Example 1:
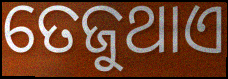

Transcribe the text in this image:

ତେଜୁଥାଏ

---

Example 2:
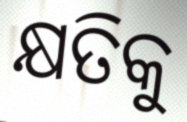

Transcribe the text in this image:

କ୍ଷତିକୁ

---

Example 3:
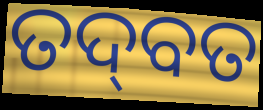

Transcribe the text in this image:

ତଦ୍‍ବତ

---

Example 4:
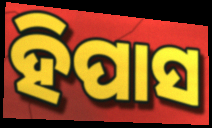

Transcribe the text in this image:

ହିପାସ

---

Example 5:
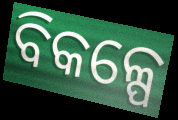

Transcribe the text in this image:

ବିକଳ୍ପେ